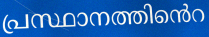
പ്രസ്ഥാനത്തിൻെറ